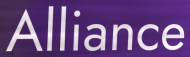
Alliance